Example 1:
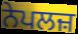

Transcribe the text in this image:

ਨੇਪਲਜ਼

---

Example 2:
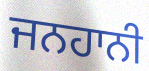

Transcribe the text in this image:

ਜਨਹਾਨੀ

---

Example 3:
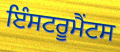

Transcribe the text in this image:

ਇੰਸਟਰੂਮੈਂਟਸ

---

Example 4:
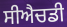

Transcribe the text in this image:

ਸੀਐਚਡੀ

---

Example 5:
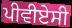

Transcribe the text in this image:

ਪੀਵੀਏਸੀ